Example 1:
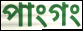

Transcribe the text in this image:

পাংগং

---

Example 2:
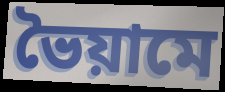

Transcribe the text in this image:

ভৈয়ামে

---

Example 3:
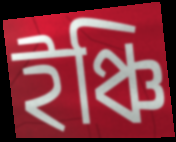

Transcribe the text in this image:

ইঞ্চি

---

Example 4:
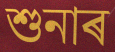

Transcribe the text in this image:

শুনাৰ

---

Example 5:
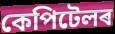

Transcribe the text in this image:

কেপিটেলৰ